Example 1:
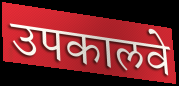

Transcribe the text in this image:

उपकालवे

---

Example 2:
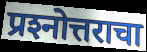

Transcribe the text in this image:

प्रश्‍नोत्तराचा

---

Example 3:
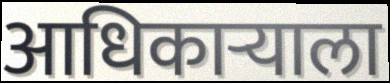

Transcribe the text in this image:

आधिकाऱ्याला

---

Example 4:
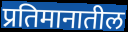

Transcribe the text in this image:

प्रतिमानातील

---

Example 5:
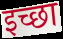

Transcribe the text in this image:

इच्छा